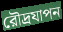
রৌদ্রযাপন